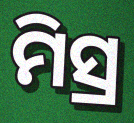
ମିସ୍ର